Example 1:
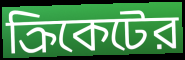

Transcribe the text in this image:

ক্রিকেটের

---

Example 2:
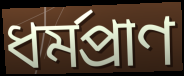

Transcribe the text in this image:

ধর্মপ্রাণ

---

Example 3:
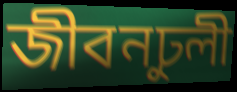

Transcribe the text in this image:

জীবনঢুলী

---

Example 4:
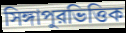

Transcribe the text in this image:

সিঙ্গাপুরভিত্তিক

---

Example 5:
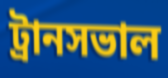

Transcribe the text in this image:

ট্রানসভাল